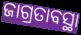
ଜାଗ୍ରତାବସ୍ଥା